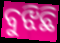
ବୁଝିଛି